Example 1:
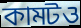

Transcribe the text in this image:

কামটও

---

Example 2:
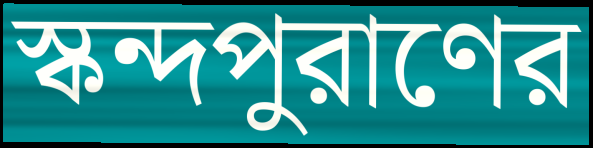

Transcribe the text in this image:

স্কন্দপুরাণের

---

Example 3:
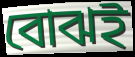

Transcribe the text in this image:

বোঝই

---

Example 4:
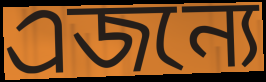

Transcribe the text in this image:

এজন্যে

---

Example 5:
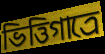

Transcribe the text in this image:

ভিত্তিগাত্রে